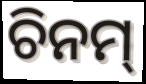
ଚିନମ୍